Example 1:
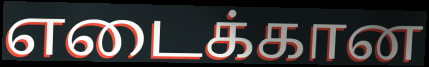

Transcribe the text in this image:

எடைக்கான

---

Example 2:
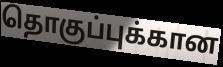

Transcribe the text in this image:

தொகுப்புக்கான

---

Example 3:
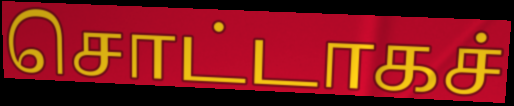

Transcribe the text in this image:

சொட்டாகச்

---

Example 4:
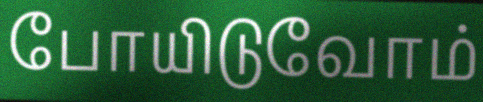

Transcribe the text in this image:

போயிடுவோம்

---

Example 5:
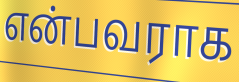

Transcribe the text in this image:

என்பவராக